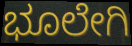
ಭೂಲೇಗಿ